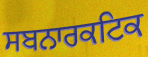
ਸਬਨਾਰਕਟਿਕ